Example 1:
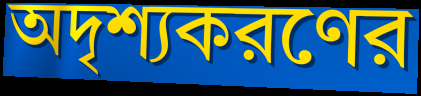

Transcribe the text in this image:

অদৃশ্যকরণের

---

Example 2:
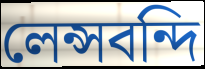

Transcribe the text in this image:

লেন্সবন্দি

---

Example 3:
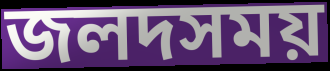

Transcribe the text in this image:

জলদসময়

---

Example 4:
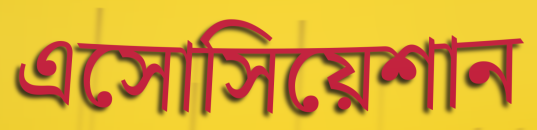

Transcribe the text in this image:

এসোসিয়েশান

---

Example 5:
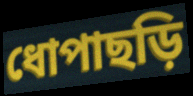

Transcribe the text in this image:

ধোপাছড়ি